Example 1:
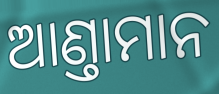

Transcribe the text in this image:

ଆଣ୍ତାମାନ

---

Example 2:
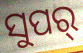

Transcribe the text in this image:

ସୁପର୍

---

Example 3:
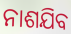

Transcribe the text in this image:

ନାଶଯିବ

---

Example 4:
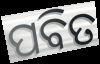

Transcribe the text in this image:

ପବିତ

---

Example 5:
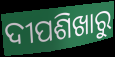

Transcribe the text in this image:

ଦୀପଶିଖାରୁ